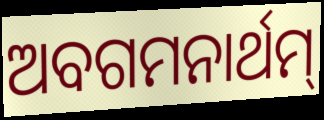
ଅବଗମନାର୍ଥମ୍